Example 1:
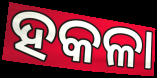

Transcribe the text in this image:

ହକଳା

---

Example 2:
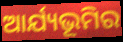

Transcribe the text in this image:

ଆର୍ଯ୍ୟଭୂମିର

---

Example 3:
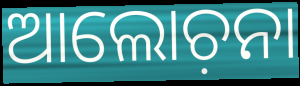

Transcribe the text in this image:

ଆଲୋଚ଼ନା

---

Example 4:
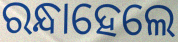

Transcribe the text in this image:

ରନ୍ଧାହେଲେ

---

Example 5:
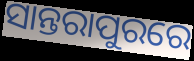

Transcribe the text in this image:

ସାନ୍ତରାପୁରରେ